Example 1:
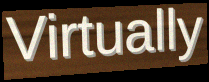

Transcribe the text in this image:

Virtually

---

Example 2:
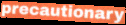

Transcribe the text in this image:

precautionary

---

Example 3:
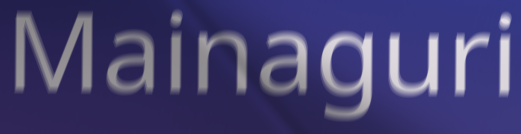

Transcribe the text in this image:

Mainaguri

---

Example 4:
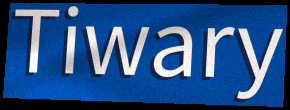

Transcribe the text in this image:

Tiwary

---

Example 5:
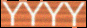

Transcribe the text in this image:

YYYY